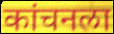
कांचनला